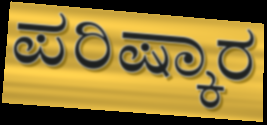
ಪರಿಷ್ಕಾರ